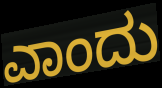
ಎಾಂದು